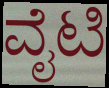
ವೈಟಿ